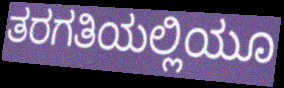
ತರಗತಿಯಲ್ಲಿಯೂ